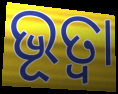
ଭୂତ୍ଵା